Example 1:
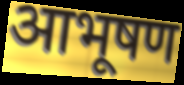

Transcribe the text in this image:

आभूषण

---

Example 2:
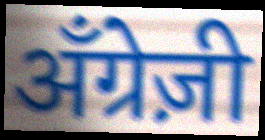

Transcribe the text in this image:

अँग्रेज़ी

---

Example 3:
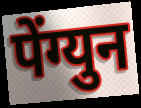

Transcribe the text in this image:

पेंग्युन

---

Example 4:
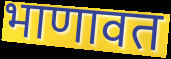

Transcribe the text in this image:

भाणावत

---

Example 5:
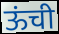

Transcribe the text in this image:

ऊंची